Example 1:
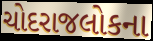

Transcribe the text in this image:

ચોદરાજલોકના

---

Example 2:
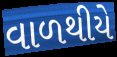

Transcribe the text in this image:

વાળથીયે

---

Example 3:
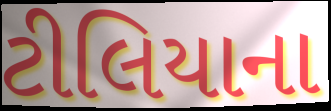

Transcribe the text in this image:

ટીલિયાના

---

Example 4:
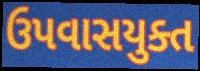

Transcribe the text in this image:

ઉપવાસયુક્ત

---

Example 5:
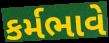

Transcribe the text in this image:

કર્મભાવે